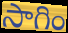
సాగిం